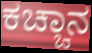
ಕಚ್ಚಾನ